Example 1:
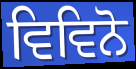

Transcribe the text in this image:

ਵਿਵਿਨੋ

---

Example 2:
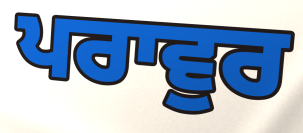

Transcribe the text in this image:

ਪਰਾਵੁਰ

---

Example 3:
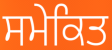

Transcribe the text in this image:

ਸਮੇਕਿਤ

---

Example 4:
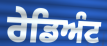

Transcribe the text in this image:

ਰੇਡਿਅੰਟ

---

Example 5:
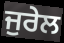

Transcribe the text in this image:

ਜੁਰੇਲ